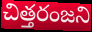
చిత్తరంజని